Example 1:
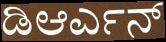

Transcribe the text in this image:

ಡಿಆರ್ಎನ್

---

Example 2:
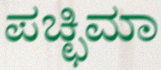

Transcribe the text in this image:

ಪಚ್ಛಿಮಾ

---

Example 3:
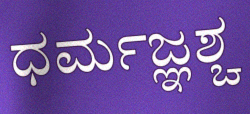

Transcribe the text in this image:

ಧರ್ಮಜ್ಞಶ್ಚ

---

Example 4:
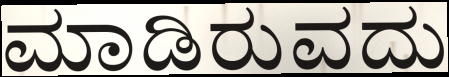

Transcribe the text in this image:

ಮಾಡಿರುವದು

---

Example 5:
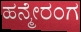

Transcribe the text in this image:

ಹನ್ಮೇರಂಗ